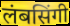
लंबसिंगी